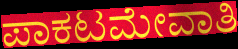
ಪಾಕಟಮೇವಾತಿ